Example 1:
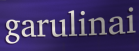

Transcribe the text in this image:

garulinai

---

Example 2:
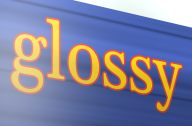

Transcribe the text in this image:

glossy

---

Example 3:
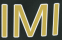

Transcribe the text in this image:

IMI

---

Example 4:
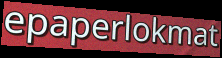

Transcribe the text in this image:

epaperlokmat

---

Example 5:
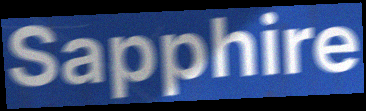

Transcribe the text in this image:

Sapphire